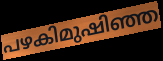
പഴകിമുഷിഞ്ഞ